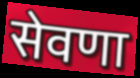
सेवणा